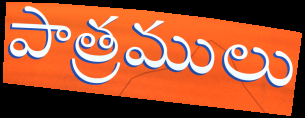
పాత్రములు